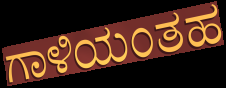
ಗಾಳಿಯಂತಹ